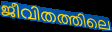
ജീവിതത്തിലെ